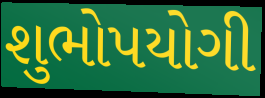
શુભોપયોગી